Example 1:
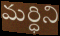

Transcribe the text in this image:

మర్ధిని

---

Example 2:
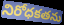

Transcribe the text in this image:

నిరోధకతను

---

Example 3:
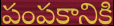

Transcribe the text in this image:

పంపకానికి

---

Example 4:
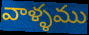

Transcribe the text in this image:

వాళ్ళము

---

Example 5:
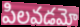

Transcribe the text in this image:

పిలవడమో